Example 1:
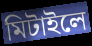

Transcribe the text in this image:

মিটাইলে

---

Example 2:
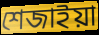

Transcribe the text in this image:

শেজাইয়া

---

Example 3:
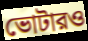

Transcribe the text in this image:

ভোটারও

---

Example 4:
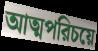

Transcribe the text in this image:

আত্মপরিচয়ে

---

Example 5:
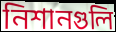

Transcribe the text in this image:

নিশানগুলি